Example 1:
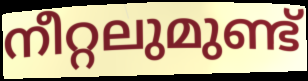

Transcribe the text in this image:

നീറ്റലുമുണ്ട്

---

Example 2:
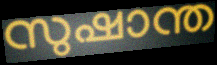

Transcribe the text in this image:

സുഷാന്ത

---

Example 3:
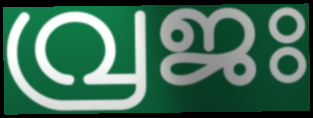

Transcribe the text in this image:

വ്രജഃ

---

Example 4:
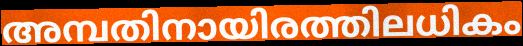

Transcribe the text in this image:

അമ്പതിനായിരത്തിലധികം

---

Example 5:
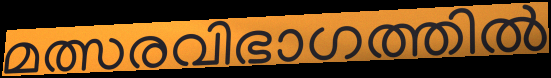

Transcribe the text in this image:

മത്സരവിഭാഗത്തിൽ